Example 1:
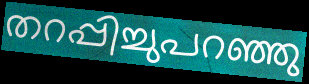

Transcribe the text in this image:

തറപ്പിച്ചുപറഞ്ഞു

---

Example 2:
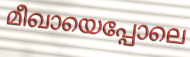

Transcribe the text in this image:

മീഖായെപ്പോലെ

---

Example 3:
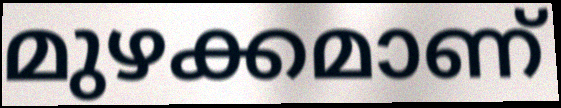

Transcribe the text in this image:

മുഴക്കമാണ്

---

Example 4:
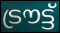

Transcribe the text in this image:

ട്രൗട്ട്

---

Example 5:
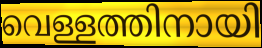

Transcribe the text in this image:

വെള്ളത്തിനായി